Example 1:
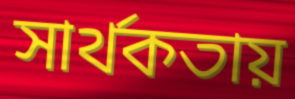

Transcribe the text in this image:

সার্থকতায়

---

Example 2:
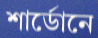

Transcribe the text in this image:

শার্ডোনে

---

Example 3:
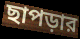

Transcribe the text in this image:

ছাপড়ার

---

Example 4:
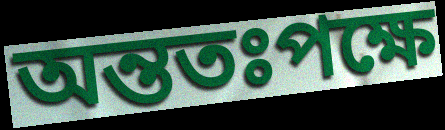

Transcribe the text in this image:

অন্ততঃপক্ষে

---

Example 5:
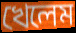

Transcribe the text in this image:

খেলেম